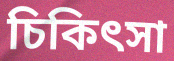
চিকিৎসা